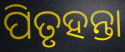
ପିତୃହନ୍ତା